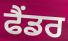
ਫੈਂਡਰ